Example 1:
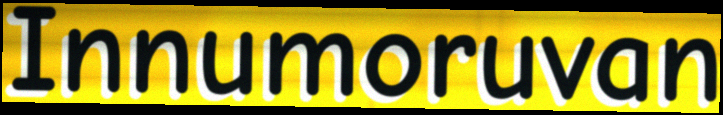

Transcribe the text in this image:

Innumoruvan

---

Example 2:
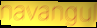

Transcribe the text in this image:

navangul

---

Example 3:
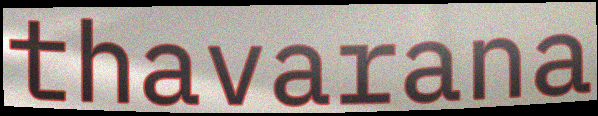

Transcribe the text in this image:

thavarana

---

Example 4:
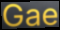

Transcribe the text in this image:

Gae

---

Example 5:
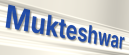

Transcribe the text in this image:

Mukteshwar